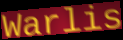
Warlis